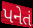
પનેતં